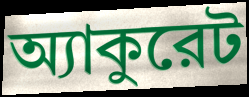
অ্যাকুরেট